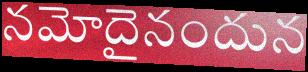
నమోదైనందున